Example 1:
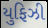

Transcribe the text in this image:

યુફિઝી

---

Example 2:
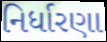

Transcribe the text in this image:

નિર્ધારણા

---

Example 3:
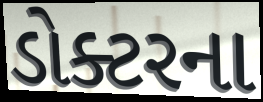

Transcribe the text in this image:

ડોક્ટરના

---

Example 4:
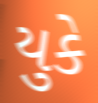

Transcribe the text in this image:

યુકે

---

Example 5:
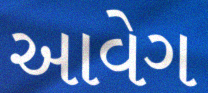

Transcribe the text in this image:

આવેગ